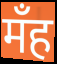
मँह